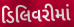
ડિલિવરીમાં